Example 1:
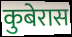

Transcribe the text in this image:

कुबेरास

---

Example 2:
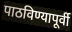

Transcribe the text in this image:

पाठविण्यापूर्वी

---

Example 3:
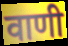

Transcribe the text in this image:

वाणी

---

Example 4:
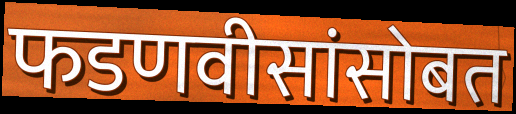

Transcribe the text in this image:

फडणवीसांसोबत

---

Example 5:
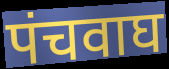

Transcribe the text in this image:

पंचवाघ